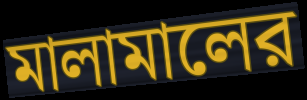
মালামালের